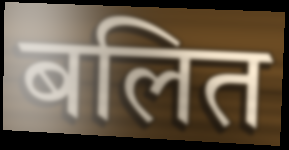
बलित